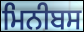
ਮਿਨੀਬਸ